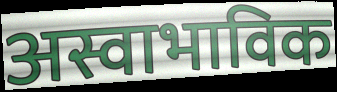
अस्वाभाविक